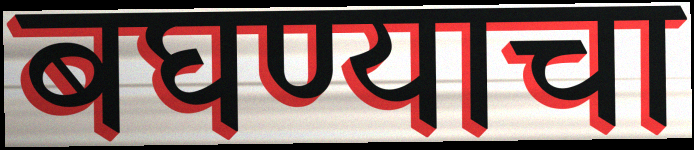
बघण्याचा